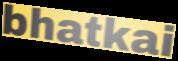
bhatkai